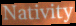
Nativity